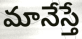
మానేస్తే